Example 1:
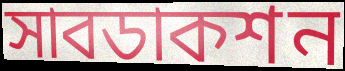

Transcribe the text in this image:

সাবডাকশন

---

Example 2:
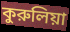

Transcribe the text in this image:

কুরুলিয়া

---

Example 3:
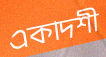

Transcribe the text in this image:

একাদশী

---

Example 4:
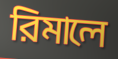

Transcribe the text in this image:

রিমালে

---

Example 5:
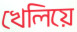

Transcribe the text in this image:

খেলিয়ে